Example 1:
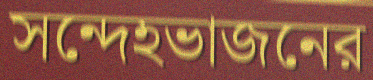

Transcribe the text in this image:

সন্দেহভাজনের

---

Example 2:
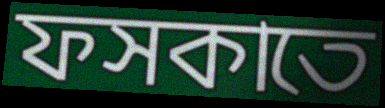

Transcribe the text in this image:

ফসকাতে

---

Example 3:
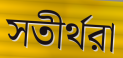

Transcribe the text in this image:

সতীর্থরা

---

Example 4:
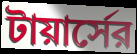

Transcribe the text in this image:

টায়ার্সের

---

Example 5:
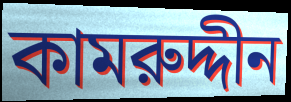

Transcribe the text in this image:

কামরুদ্দীন